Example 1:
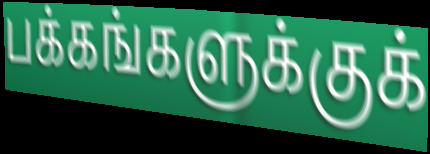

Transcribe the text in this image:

பக்கங்களுக்குக்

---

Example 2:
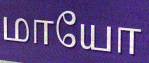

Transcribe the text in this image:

மாயோ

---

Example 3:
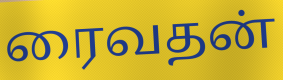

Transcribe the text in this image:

ரைவதன்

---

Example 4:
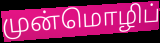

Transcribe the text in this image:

முன்மொழிப்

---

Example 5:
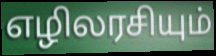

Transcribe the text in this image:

எழிலரசியும்